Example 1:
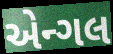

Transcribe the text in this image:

એન્ગલ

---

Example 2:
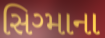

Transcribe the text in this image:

સિગ્માના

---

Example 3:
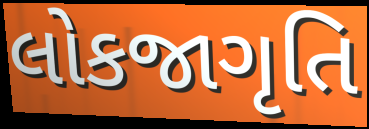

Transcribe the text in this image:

લોકજાગૃતિ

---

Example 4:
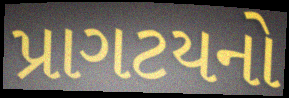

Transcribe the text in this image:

પ્રાગટયનો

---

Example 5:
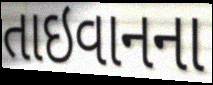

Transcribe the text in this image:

તાઇવાનના